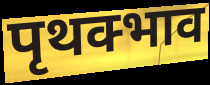
पृथक्भाव